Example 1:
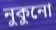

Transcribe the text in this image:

নুকুনো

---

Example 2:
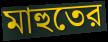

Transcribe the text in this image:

মাহুতের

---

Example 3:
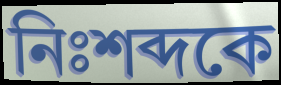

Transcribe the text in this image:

নিঃশব্দকে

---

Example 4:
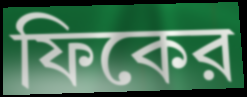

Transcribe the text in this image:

ফিকের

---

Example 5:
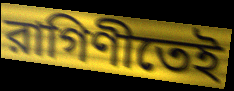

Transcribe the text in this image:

রাগিণীতেই